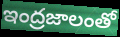
ఇంద్రజాలంతో